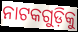
ନାଟକଗୁଡ଼ିକୁ